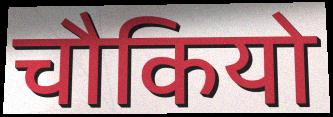
चौकियो